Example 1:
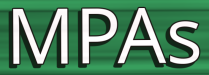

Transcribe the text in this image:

MPAs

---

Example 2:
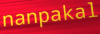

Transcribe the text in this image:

nanpakal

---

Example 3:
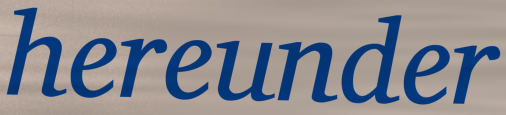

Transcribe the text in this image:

hereunder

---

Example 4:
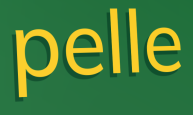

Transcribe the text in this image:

pelle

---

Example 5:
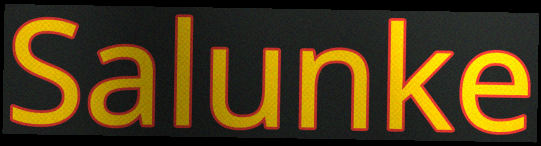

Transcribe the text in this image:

Salunke